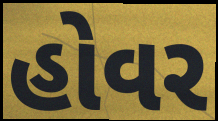
હોવર